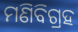
ମଣିବିଗ୍ରହ